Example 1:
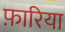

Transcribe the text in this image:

फ़ारिया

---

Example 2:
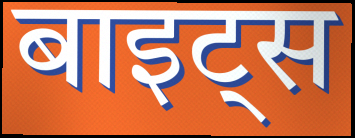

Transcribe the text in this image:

बाइट्स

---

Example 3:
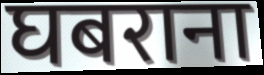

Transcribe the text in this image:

घबराना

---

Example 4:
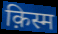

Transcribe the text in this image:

क़िस्म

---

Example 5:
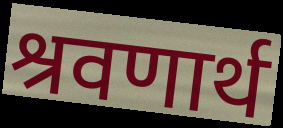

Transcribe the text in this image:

श्रवणार्थ